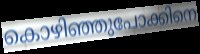
കൊഴിഞ്ഞുപോക്കിനെ